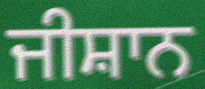
ਜੀਸ਼ਾਨ